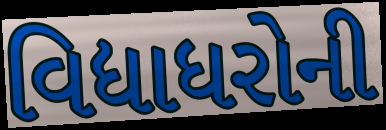
વિદ્યાધરોની